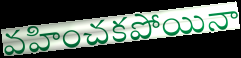
వహించకపోయినా